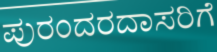
ಪುರಂದರದಾಸರಿಗೆ